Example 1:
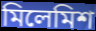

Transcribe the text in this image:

মিলেমিশ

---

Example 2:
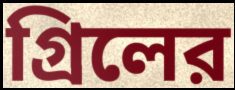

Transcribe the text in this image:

গ্রিলের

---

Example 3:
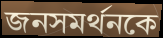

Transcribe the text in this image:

জনসমর্থনকে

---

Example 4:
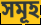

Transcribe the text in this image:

সমূহ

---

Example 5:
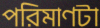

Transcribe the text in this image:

পরিমাণটা